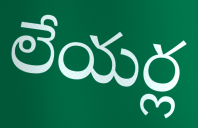
లేయర్ల